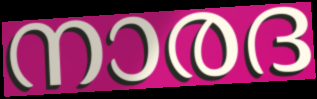
നാരദ